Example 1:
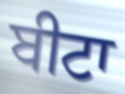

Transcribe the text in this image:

ਬੀਟਾ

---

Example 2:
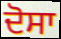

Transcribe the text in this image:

ਦੋਸਾ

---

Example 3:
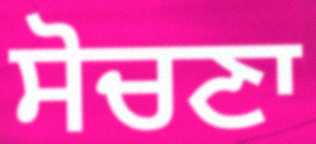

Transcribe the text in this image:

ਸੋਚਣਾ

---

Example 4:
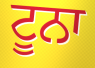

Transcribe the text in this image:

ਟੂਨਾ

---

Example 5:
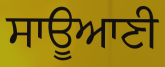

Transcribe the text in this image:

ਸਾਊਆਣੀ